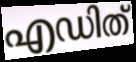
എഡിത്